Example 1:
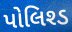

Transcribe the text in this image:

પોલિશ્ડ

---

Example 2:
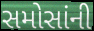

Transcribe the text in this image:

સમોસાંની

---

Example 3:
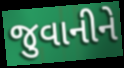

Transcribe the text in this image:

જુવાનીને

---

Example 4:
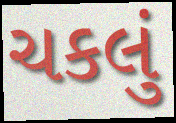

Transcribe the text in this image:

ચકલું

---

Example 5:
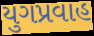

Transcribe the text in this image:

યુગપ્રવાહ